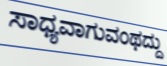
ಸಾಧ್ಯವಾಗುವಂಥದ್ದು